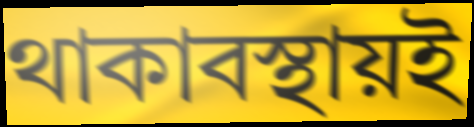
থাকাবস্থায়ই